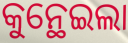
କୁନ୍ଥେଇଲା